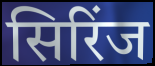
सिरिंज